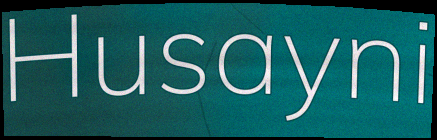
Husayni